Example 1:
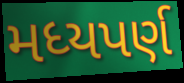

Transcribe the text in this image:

મધ્યપર્ણ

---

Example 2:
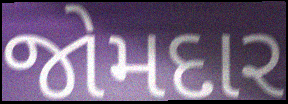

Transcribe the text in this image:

જોમદાર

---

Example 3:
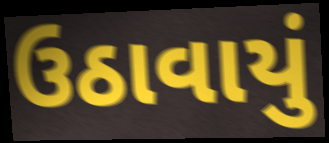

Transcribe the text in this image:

ઉઠાવાયું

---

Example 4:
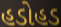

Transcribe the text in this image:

હડોહડ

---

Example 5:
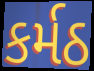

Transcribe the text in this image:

કર્મઠ